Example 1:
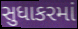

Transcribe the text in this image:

સુધાકરમાં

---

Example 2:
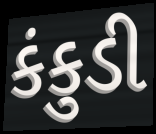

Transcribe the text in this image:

કંકુડી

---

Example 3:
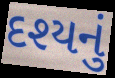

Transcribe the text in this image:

દશ્યનું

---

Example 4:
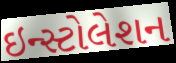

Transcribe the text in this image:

ઇન્સ્ટોલેશન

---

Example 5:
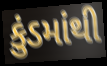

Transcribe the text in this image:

કુંડમાંથી